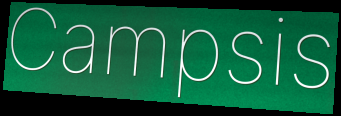
Campsis